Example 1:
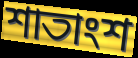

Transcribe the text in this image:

শাতাংশ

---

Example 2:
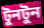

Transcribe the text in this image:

টুনটুন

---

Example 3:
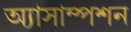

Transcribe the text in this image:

অ্যাসাম্পশন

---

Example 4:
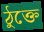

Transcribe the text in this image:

ঠুক্তে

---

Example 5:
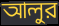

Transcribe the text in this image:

আলুর